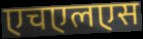
एचएलएस